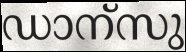
ഡാന്സു